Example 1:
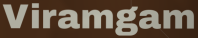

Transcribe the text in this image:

Viramgam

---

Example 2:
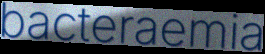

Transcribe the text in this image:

bacteraemia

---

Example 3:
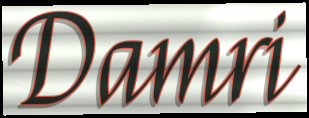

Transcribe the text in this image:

Damri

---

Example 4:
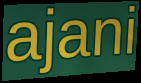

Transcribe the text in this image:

ajani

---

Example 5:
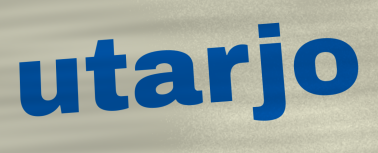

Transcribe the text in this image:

utarjo